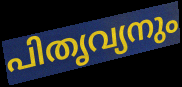
പിതൃവ്യനും